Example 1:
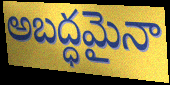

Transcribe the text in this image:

అబద్ధమైనా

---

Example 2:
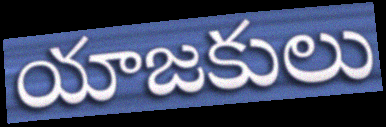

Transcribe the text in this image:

యాజకులు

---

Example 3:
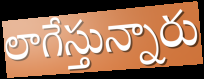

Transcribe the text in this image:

లాగేస్తున్నారు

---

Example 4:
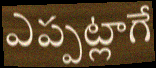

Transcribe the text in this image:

ఎప్పట్లాగే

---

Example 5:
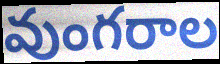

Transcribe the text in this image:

వుంగరాల